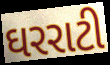
ઘરરાટી